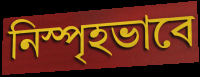
নিস্পৃহভাবে